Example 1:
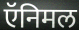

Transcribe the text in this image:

ऍनिमल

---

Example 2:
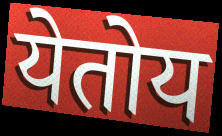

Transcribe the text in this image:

येतोय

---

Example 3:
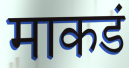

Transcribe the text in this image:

माकडं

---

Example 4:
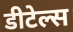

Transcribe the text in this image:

डीटेल्स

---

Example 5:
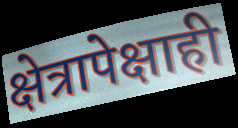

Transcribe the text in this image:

क्षेत्रापेक्षाही